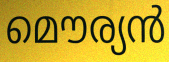
മൌര്യൻ